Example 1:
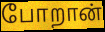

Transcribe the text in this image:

போறான்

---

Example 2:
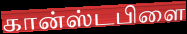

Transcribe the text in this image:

கான்ஸ்டபிளை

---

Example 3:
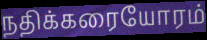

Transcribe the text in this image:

நதிக்கரையோரம்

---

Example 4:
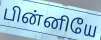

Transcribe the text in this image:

பின்னியே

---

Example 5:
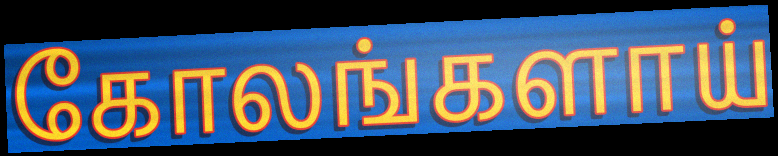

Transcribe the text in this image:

கோலங்களாய்